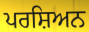
ਪਰਸ਼ਿਅਨ